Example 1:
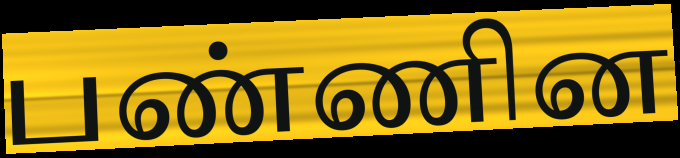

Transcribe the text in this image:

பண்ணின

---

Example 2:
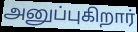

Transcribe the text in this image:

அனுப்புகிறார்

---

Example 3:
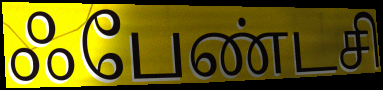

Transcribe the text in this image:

ஃபேண்டசி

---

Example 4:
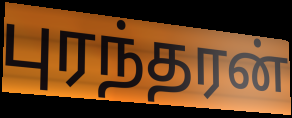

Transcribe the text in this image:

புரந்தரன்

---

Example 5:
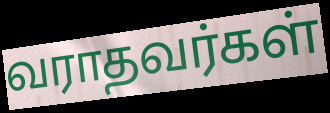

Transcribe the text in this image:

வராதவர்கள்